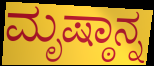
ಮೃಷ್ಠಾನ್ನ